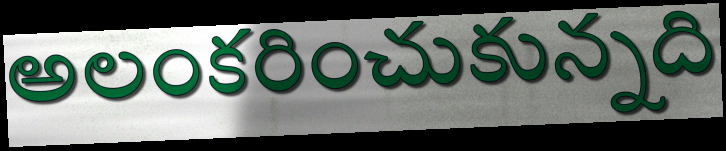
అలంకరించుకున్నది